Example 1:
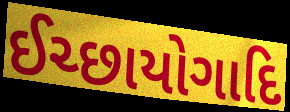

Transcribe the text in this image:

ઈચ્છાયોગાદિ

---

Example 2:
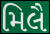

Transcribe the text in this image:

મિલૈ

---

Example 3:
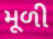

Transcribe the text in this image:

મૂળી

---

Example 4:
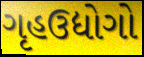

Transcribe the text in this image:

ગૃહઉદ્યોગો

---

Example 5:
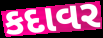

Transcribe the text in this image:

કદાવર